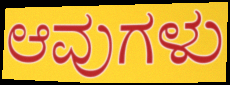
ಆವುಗಳು